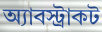
অ্যাবস্ট্রাকট